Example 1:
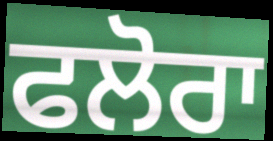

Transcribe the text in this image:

ਫਲੋਰਾ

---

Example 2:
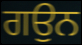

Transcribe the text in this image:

ਗਉਨ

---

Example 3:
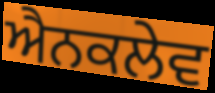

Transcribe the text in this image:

ਐਨਕਲੇਵ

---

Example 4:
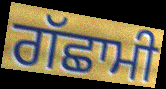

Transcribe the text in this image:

ਗੱਛਾਮੀ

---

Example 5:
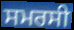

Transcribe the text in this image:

ਸਮਰਸੀ